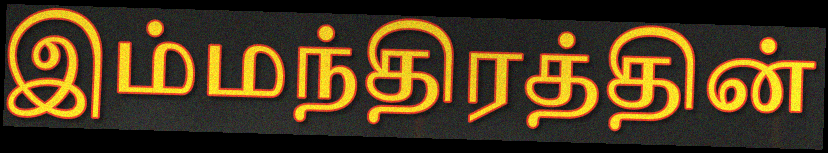
இம்மந்திரத்தின்